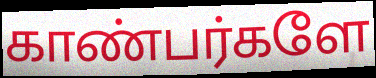
காண்பர்களே